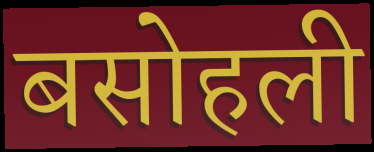
बसोहली